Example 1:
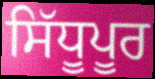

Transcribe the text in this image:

ਸਿੱਧੂਪੂਰ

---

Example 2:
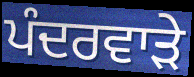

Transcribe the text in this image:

ਪੰਦਰਵਾੜੇ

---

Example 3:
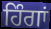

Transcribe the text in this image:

ਹਿੰਗਾਂ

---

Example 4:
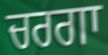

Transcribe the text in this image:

ਚਰਗਾ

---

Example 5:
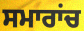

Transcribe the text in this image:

ਸਮਾਰਾਂਚ